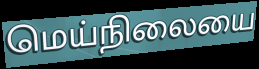
மெய்நிலையை